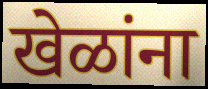
खेळांना